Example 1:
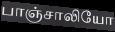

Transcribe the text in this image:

பாஞ்சாலியோ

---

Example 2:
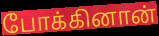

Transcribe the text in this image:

போக்கினான்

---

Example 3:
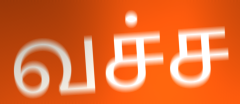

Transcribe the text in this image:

வச்ச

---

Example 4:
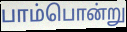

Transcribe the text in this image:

பாம்பொன்று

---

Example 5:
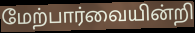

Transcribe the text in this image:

மேற்பார்வையின்றி